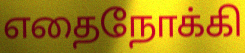
எதைநோக்கி